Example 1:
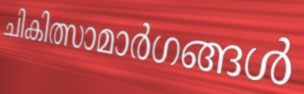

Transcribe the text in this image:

ചികിത്സാമാർഗങ്ങൾ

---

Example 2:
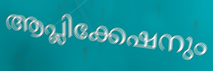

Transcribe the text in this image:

ആപ്ലിക്കേഷനും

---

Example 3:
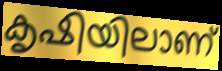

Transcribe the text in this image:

കൃഷിയിലാണ്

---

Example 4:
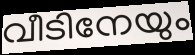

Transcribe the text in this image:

വീടിനേയും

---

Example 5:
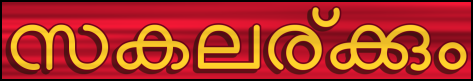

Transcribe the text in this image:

സകലര്ക്കും